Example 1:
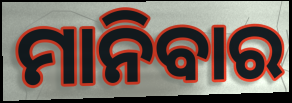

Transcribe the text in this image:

ମାନିବାର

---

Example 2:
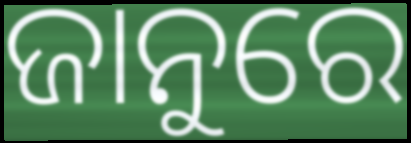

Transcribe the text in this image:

ଜାନୁରେ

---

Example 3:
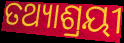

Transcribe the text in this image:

ତଥ୍ୟାଶ୍ରୟୀ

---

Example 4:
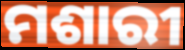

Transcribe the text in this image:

ମଶାରୀ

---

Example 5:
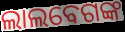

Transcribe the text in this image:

ଲାଲବେଗଙ୍କ